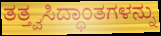
ತತ್ತ್ವಸಿದ್ಧಾಂತಗಳನ್ನು